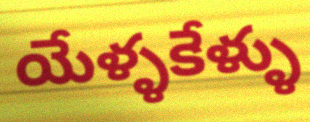
యేళ్ళకేళ్ళు